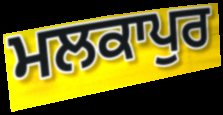
ਮਲਕਾਪੁਰ